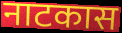
नाटकास